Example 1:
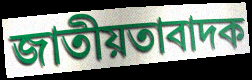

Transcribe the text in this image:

জাতীয়তাবাদক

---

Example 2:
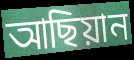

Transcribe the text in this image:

আছিয়ান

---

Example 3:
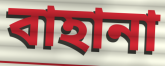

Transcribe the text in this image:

বাহানা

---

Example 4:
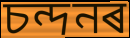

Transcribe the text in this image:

চন্দনৰ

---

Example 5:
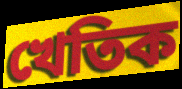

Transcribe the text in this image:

খেতিক